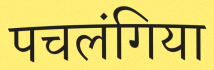
पचलंगिया